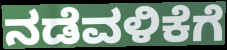
ನಡೆವಳಿಕೆಗೆ